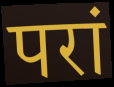
परां